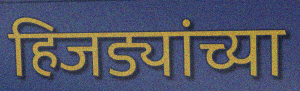
हिजड्यांच्या